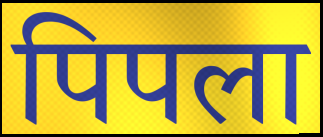
पिपला